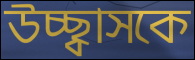
উচ্ছ্বাসকে